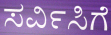
ಸರ್ವಿಸಿಗೆ